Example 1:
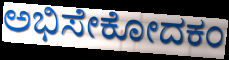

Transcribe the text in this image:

ಅಭಿಸೇಕೋದಕಂ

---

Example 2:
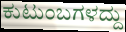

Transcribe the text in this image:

ಕುಟುಂಬಗಳದ್ದು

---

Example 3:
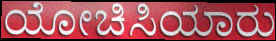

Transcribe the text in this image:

ಯೋಚಿಸಿಯಾರು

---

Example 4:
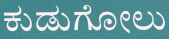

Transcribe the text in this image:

ಕುಡುಗೋಲು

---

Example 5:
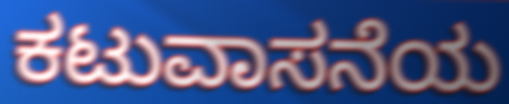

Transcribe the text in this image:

ಕಟುವಾಸನೆಯ